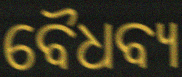
ବୈଧବ୍ୟ